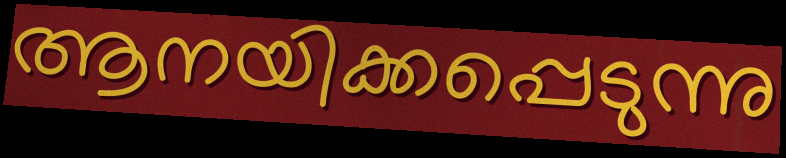
ആനയിക്കപ്പെടുന്നു